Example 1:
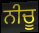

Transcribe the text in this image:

ਨੀਚੂ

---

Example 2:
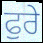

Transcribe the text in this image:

ਫੁਰੇ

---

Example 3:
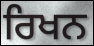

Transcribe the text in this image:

ਰਿਖਨ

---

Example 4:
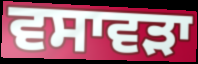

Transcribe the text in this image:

ਵਸਾਵੜਾ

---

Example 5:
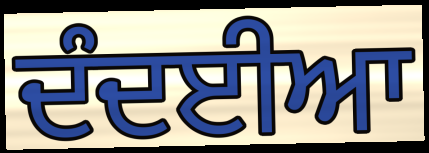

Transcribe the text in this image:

ਦੰਦਈਆ